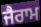
ਜੈਰਾਮ